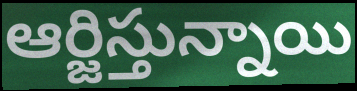
ఆర్జిస్తున్నాయి